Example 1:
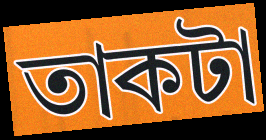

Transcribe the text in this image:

তাকটা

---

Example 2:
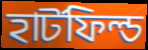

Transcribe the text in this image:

হার্টফিল্ড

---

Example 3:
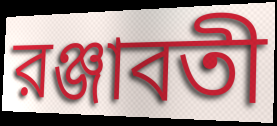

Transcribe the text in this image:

রঞ্জাবতী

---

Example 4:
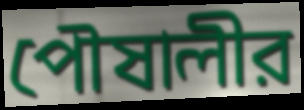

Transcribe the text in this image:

পৌষালীর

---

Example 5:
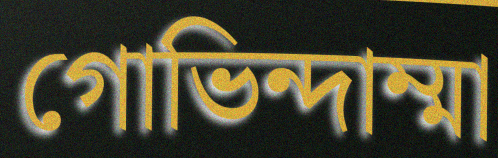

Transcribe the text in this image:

গোভিন্দাম্মা